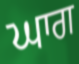
ਘਾਗ